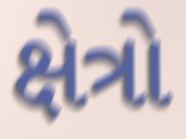
ક્ષેત્રો